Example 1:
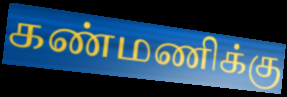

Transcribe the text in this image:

கண்மணிக்கு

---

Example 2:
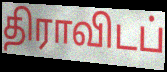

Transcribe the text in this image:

திராவிடப்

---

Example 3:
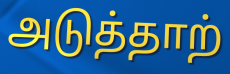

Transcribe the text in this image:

அடுத்தாற்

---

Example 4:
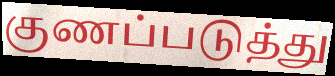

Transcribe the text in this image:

குணப்படுத்து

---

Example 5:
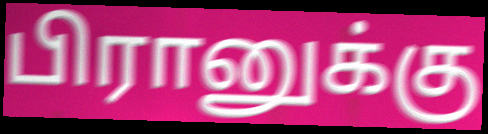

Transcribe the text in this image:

பிரானுக்கு